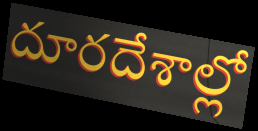
దూరదేశాల్లో